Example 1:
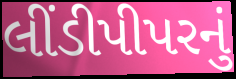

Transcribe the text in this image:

લીંડીપીપરનું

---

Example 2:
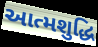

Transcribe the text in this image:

આત્મશુદ્ધિ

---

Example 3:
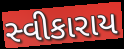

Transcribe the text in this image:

સ્વીકારાય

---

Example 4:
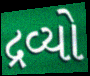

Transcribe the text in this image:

દ્રવ્યો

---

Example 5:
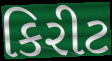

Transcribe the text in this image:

કિરીટ